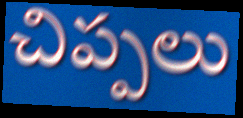
చిప్పలు